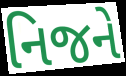
નિજને